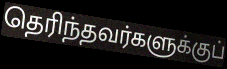
தெரிந்தவர்களுக்குப்